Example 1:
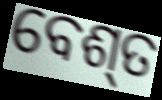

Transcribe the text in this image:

ବେଶ୍‍ତ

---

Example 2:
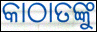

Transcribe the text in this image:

କାଠାତଙ୍କୁ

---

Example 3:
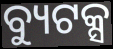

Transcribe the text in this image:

ବ୍ୟୁଟକ୍ସ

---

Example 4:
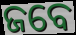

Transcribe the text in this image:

ଜବେ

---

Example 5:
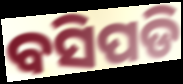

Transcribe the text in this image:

ବସିପଡି